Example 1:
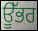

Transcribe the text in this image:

ਊੱਭਰ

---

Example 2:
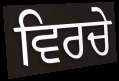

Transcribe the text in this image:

ਵਿਰਚੇ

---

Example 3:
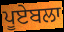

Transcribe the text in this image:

ਪੂਏਬਲਾ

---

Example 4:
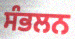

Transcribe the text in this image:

ਸੰਭਲਨ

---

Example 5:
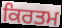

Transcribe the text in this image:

ਕਿਰਤਮ